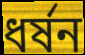
ধর্ষন